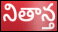
నితాన్త